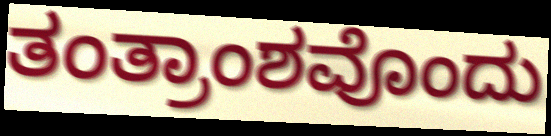
ತಂತ್ರಾಂಶವೊಂದು